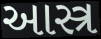
આસ્ત્ર